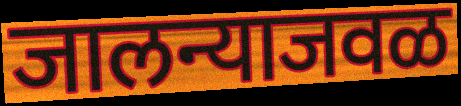
जालन्याजवळ